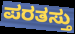
ಪರತಸ್ತು